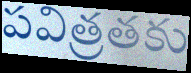
పవిత్రతకు